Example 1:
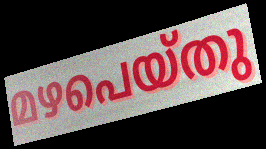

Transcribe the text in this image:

മഴപെയ്തു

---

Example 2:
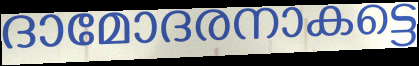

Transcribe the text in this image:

ദാമോദരനാകട്ടെ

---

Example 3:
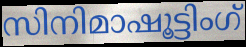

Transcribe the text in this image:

സിനിമാഷൂട്ടിംഗ്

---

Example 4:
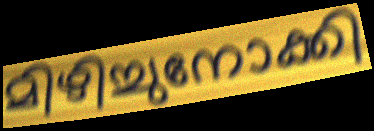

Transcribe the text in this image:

മിഴിച്ചുനോക്കി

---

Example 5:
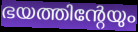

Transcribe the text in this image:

ഭയത്തിന്റേയും